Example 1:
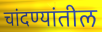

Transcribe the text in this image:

चांदण्यांतील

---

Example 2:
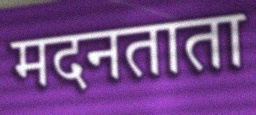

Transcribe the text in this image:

मदनताता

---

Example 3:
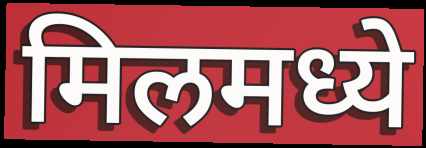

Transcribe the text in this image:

मिलमध्ये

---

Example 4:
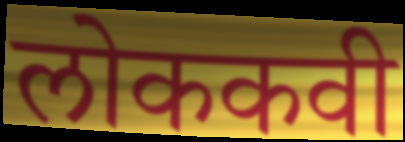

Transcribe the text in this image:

लोककवी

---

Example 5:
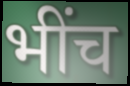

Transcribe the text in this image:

भींच